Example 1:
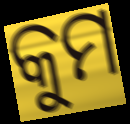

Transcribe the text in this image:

କୁମ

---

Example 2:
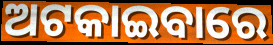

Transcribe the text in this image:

ଅଟକାଇବାରେ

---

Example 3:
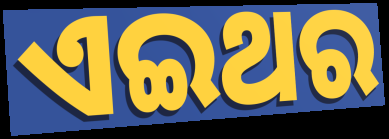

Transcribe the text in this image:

ଏଇଥର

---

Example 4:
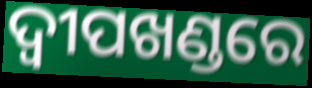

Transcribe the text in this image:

ଦ୍ଵୀପଖଣ୍ଡରେ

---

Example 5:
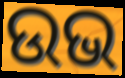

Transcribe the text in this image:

ଉଭ